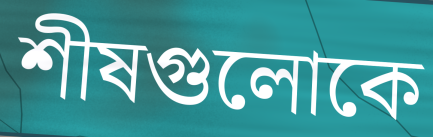
শীষগুলোকে